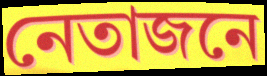
নেতাজনে